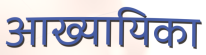
आख्यायिका